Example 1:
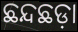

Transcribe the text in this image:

ଛନ୍ଦଛଡ଼ା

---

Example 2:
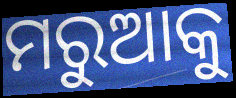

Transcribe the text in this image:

ମରୁଆକୁ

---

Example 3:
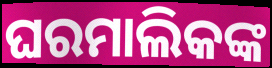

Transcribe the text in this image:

ଘରମାଲିକଙ୍କ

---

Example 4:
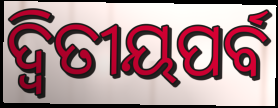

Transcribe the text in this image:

ଦ୍ୱିତୀୟପର୍ବ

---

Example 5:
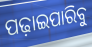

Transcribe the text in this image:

ପଢ଼ାଇପାରିବୁ